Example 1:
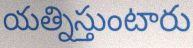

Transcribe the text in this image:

యత్నిస్తుంటారు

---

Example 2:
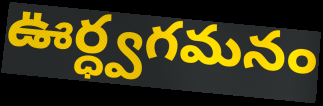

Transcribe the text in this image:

ఊర్ధ్వగమనం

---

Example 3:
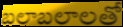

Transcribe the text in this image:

బలాబలాలతో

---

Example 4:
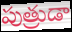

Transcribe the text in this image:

పుత్రుడా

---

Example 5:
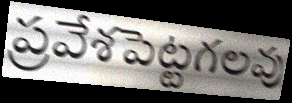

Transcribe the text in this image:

ప్రవేశపెట్టగలవు